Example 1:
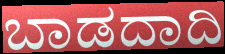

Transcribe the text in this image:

ಬಾಡದಾದಿ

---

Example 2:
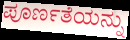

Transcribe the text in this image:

ಪೂರ್ಣತೆಯನ್ನು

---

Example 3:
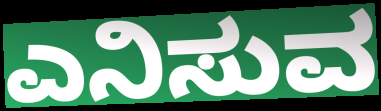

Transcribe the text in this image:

ಎನಿಸುವ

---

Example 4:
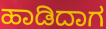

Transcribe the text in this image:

ಹಾಡಿದಾಗ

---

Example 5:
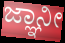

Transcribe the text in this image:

ಜ್ಞಾನೀ